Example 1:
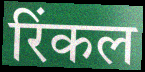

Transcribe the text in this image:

रिंकल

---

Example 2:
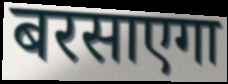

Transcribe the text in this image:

बरसाएगा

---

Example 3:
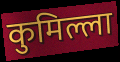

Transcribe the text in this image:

कुमिल्ला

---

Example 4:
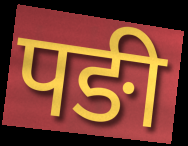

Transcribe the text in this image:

पङी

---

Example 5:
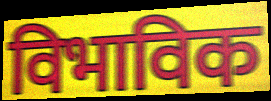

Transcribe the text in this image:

विभाविक